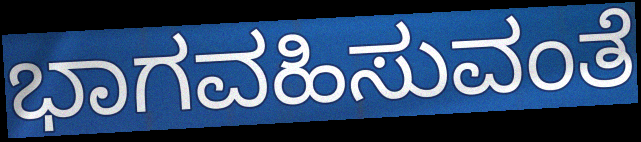
ಭಾಗವಹಿಸುವಂತೆ